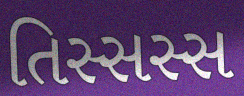
તિસ્સસ્સ